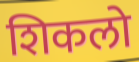
शिकलो